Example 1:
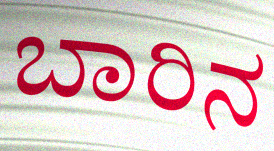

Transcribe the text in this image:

ಬಾರಿನ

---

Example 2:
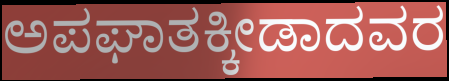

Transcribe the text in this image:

ಅಪಘಾತಕ್ಕೀಡಾದವರ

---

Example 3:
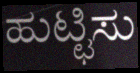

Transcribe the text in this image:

ಹುಟ್ಟಿಸು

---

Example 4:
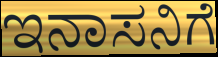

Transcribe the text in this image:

ಇನಾಸನಿಗೆ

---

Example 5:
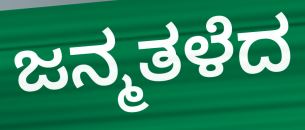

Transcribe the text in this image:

ಜನ್ಮತಳೆದ